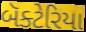
બૅક્ટેરિયા